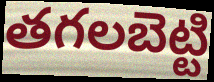
తగలబెట్టి